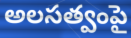
అలసత్వంపై